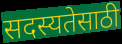
सदस्यतेसाठी